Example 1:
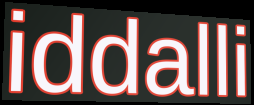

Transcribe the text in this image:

iddalli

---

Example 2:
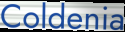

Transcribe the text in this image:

Coldenia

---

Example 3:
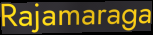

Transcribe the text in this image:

Rajamaraga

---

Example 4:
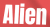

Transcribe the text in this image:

Alien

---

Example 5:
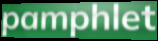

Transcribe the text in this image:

pamphlet